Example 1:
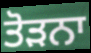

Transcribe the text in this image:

ਤੋੜਨਾ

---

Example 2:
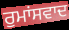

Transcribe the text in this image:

ਰੁਮਾਂਸਵਾਦ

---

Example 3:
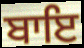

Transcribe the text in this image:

ਬਾਇ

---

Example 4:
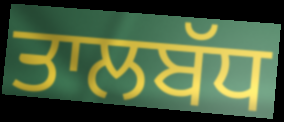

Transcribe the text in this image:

ਤਾਲਬੱਧ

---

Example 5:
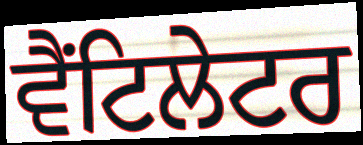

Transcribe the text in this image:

ਵੈਂਟਿਲੇਟਰ